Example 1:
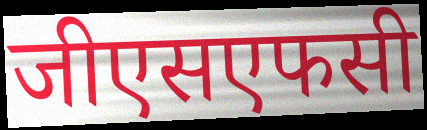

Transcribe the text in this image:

जीएसएफसी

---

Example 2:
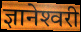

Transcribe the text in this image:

ज्ञानेश्‍वरी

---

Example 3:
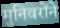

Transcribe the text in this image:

मुनिवरोंने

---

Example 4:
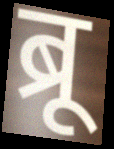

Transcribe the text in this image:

ब्रू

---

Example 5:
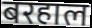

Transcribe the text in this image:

बरहाल